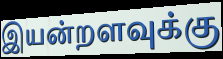
இயன்றளவுக்கு